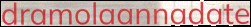
dramolaannadate